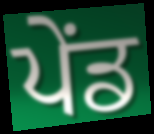
ਪੇਂਡ